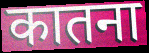
कातना